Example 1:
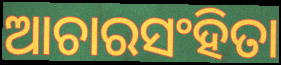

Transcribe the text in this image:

ଆଚାରସଂହିତା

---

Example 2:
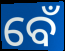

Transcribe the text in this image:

ବେଁ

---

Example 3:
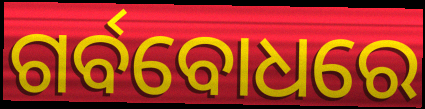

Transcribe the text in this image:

ଗର୍ବବୋଧରେ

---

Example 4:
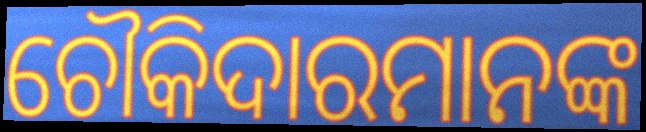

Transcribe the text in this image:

ଚୌକିଦାରମାନଙ୍କ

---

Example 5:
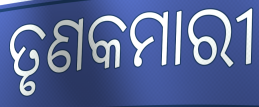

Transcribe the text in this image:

ତୃଣକମାରୀ